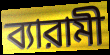
ব্যারামী